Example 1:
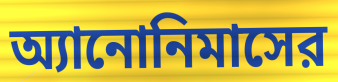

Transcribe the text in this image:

অ্যানোনিমাসের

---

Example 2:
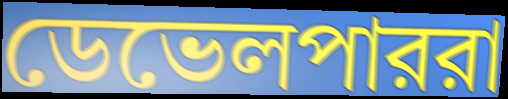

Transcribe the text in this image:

ডেভেলপাররা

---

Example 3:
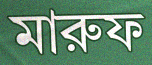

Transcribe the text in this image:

মারুফ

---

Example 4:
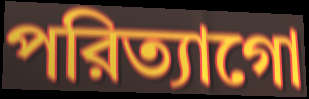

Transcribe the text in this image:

পরিত্যাগো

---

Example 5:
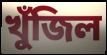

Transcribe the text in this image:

খুঁজিল